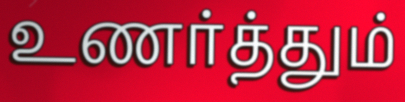
உணர்த்தும்